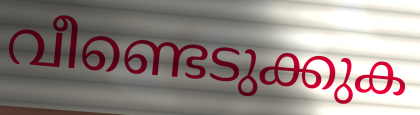
വീണ്ടെടുക്കുക